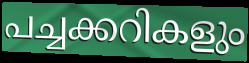
പച്ചക്കറികളും